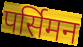
पर्सिमन